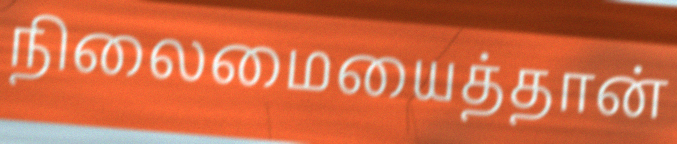
நிலைமையைத்தான்